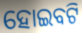
ହୋଇବଟି